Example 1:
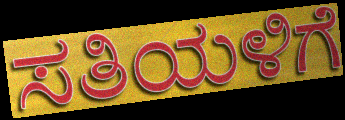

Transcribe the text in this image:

ಸತಿಯಳಿಗೆ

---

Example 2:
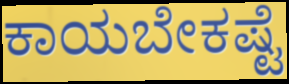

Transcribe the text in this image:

ಕಾಯಬೇಕಷ್ಟೆ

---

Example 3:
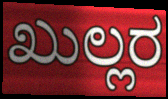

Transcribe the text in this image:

ಖುಲ್ಲರ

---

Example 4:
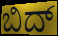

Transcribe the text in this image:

ಬಿದ್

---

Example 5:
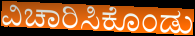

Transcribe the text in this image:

ವಿಚಾರಿಸಿಕೊಂಡು